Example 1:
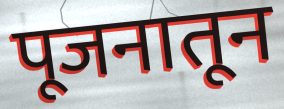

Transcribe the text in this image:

पूजनातून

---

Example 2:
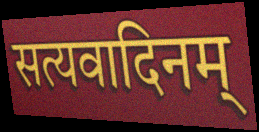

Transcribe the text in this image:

सत्यवादिनम्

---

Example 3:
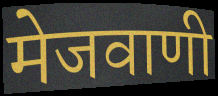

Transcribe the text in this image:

मेजवाणी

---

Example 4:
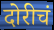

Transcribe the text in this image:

दोरीचं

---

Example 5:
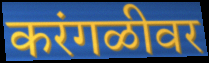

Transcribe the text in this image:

करंगळीवर